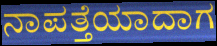
ನಾಪತ್ತೆಯಾದಾಗ